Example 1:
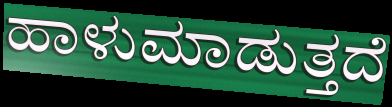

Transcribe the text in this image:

ಹಾಳುಮಾಡುತ್ತದೆ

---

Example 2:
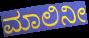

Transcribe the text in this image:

ಮಾಲಿನೀ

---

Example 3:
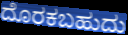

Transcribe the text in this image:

ದೊರಕಬಹುದು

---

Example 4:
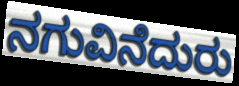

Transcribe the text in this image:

ನಗುವಿನೆದುರು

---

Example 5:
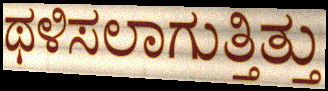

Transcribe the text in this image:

ಥಳಿಸಲಾಗುತ್ತಿತ್ತು